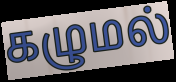
கழுமல்